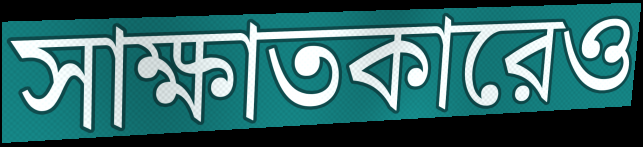
সাক্ষাতকারেও